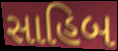
સાહિબ